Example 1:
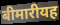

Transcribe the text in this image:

बीमारीयह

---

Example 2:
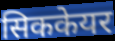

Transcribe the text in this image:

सिककेयर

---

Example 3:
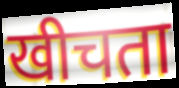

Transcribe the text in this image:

खीचता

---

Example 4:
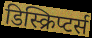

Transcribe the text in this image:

डिस्क्रिप्टर्स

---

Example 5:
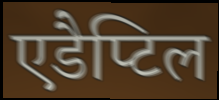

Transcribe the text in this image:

एडैप्टिल